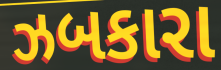
ઝબકારા